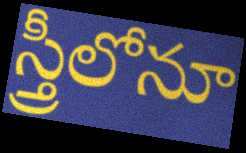
స్త్రీలోనూ